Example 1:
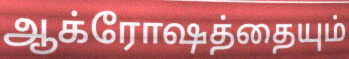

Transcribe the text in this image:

ஆக்ரோஷத்தையும்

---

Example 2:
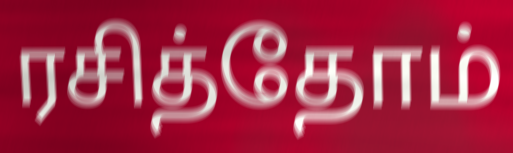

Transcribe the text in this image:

ரசித்தோம்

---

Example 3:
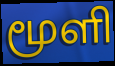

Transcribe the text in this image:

மூளி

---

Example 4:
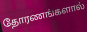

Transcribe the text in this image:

தோரணங்களால்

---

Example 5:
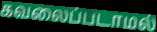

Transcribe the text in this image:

கவலைப்படாமல்